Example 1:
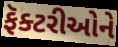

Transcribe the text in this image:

ફૅક્ટરીઓને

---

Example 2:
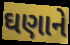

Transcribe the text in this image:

ઘણાને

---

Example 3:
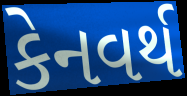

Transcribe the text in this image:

કેનવર્થ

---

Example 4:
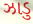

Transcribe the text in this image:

ઝાડુ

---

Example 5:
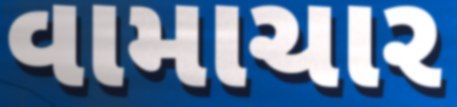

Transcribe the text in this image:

વામાચાર